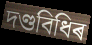
দণ্ডবিধিৰ